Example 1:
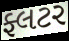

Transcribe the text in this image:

ફ્લટર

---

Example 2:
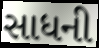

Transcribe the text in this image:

સાધની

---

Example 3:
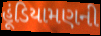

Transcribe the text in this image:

હૂંડિયામણની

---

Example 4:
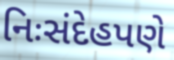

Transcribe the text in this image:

નિઃસંદેહપણે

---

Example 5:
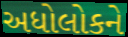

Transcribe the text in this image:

અધોલોકને